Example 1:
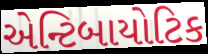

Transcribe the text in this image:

એન્ટિબાયોટિક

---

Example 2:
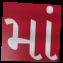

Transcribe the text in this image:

માં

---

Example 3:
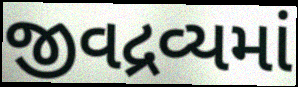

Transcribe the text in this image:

જીવદ્રવ્યમાં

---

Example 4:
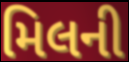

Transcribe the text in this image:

મિલની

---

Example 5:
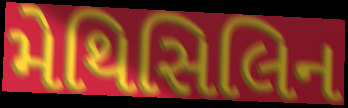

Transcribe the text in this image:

મેથિસિલિન